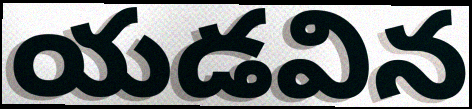
యడవిన